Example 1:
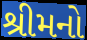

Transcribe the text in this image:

શ્રીમનો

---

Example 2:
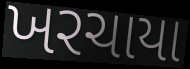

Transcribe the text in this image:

ખરચાયા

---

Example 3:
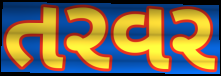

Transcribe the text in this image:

તરવર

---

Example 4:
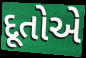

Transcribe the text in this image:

દૂતોએ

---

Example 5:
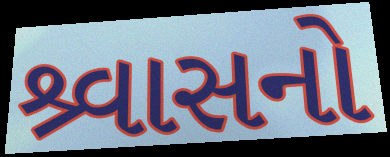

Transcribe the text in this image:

શ્ર્વાસનો